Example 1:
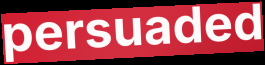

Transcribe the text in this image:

persuaded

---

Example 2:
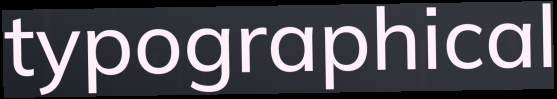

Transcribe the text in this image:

typographical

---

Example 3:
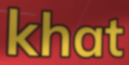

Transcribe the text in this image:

khat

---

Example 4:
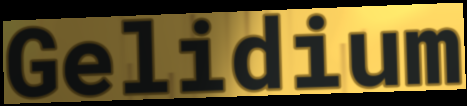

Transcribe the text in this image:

Gelidium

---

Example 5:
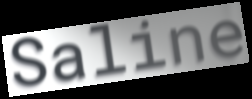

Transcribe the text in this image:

Saline